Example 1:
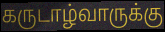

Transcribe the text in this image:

கருடாழ்வாருக்கு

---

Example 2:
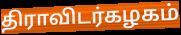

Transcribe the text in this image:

திராவிடர்கழகம்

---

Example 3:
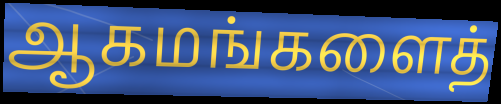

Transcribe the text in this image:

ஆகமங்களைத்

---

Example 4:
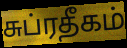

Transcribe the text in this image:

சுப்ரதீகம்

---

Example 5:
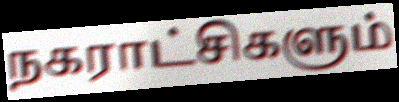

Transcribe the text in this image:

நகராட்சிகளும்